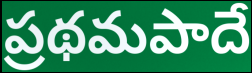
ప్రథమపాదే